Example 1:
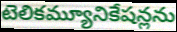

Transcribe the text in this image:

టెలికమ్యూనికేషన్లను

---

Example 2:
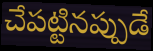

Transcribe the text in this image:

చేపట్టినప్పుడే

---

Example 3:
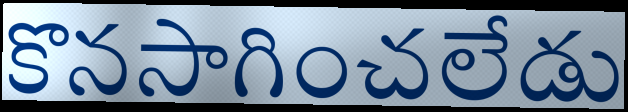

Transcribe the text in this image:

కొనసాగించలేడు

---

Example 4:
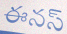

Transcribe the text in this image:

ఈనస్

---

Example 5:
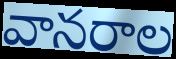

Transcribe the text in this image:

వానరాల